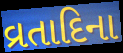
વ્રતાદિના